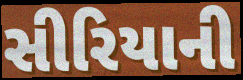
સીરિયાની